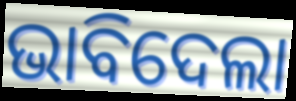
ଭାବିଦେଲା